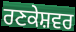
ਰਣਕੇਸ਼ਵਰ